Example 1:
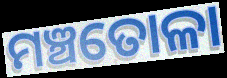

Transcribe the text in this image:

ମଞ୍ଚତୋଳା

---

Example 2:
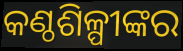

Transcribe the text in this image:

କଣ୍ଠଶିଳ୍ପୀଙ୍କର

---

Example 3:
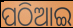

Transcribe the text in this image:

ପଠିଆଇ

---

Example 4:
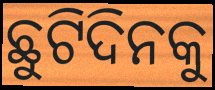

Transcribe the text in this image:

ଛୁଟିଦିନକୁ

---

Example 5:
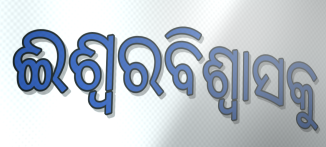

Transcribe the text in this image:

ଈଶ୍ୱରବିଶ୍ଵାସକୁ